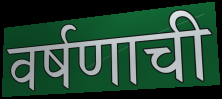
वर्षणाची